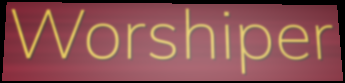
Worshiper